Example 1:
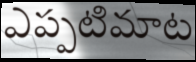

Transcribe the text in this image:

ఎప్పటిమాట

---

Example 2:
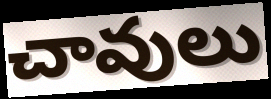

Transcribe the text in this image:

చావులు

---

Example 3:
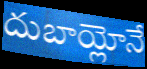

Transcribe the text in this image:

దుబాయ్లోనే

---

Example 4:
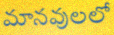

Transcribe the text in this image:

మానవులలో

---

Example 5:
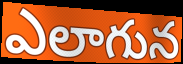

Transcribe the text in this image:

ఎలాగున